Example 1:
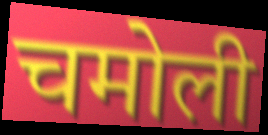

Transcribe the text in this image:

चमोली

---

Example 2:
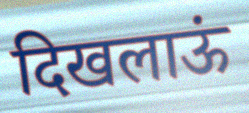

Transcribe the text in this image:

दिखलाऊं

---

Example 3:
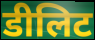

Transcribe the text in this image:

डीलिट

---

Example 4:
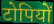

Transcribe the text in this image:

टोपियों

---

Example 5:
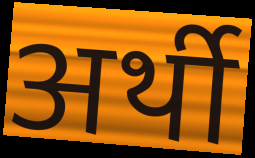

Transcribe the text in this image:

अर्थी